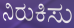
ನಿರುಕಿಸು